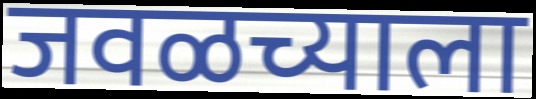
जवळच्याला